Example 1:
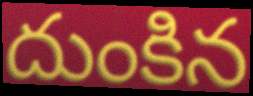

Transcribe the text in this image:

దుంకిన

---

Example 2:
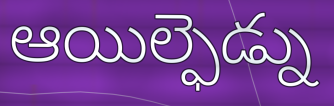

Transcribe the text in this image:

ఆయిల్ఫెడ్ను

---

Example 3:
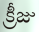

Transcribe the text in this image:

క్రీజు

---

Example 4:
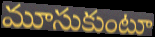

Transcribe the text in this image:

మూసుకుంటూ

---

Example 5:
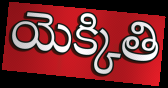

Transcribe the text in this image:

యెక్కితి